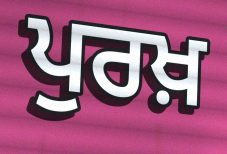
ਪੁਰਖ਼